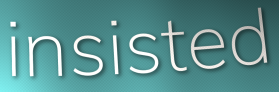
insisted